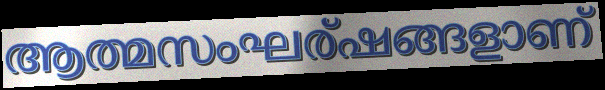
ആത്മസംഘര്ഷങ്ങളാണ്